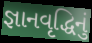
જ્ઞાનવૃદ્ધિનું